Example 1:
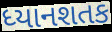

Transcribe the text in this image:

ધ્યાનશતક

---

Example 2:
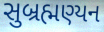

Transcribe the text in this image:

સુબ્રહ્મણ્યન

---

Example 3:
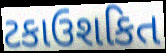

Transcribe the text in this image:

ટકાઉશકિત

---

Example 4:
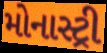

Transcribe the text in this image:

મોનાસ્ટ્રી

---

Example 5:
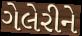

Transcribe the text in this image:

ગેલેરીને